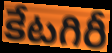
కేటగిరీ